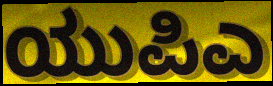
ಯುಪಿಎ